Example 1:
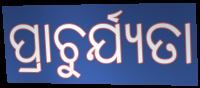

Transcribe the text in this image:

ପ୍ରାଚୁର୍ଯ୍ୟତା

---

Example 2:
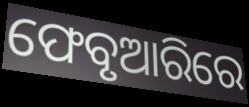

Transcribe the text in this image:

ଫେବୃଆରିରେ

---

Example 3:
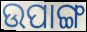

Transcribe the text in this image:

ଉପାଙ୍ଗ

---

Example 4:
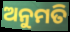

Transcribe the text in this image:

ଅନୁମତି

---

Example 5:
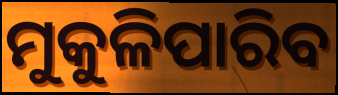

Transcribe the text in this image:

ମୁକୁଳିପାରିବ